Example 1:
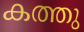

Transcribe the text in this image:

കത്തു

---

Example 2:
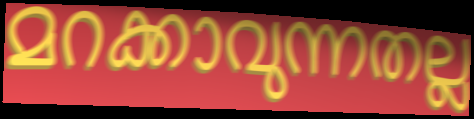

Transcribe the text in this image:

മറക്കാവുന്നതല്ല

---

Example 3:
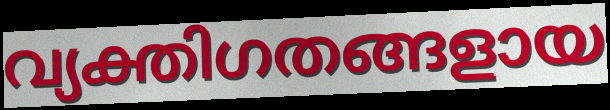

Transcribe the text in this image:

വ്യക്തിഗതങ്ങളായ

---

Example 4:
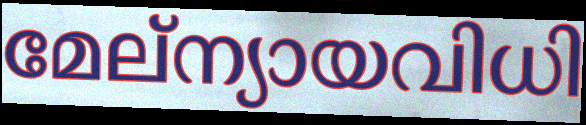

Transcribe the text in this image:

മേല്ന്യായവിധി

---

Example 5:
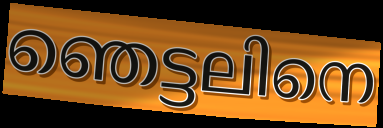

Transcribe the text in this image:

ഞെട്ടലിനെ